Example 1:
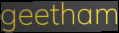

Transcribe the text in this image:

geetham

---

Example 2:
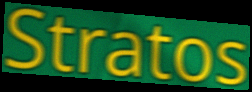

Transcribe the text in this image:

Stratos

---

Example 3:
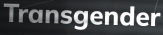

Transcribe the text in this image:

Transgender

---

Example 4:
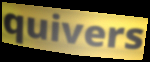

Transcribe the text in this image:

quivers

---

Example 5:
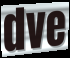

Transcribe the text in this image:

dve